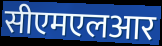
सीएमएलआर